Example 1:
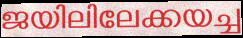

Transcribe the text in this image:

ജയിലിലേക്കയച്ച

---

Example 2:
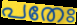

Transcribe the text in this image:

പതേഃ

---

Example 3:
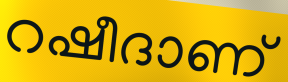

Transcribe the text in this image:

റഷീദാണ്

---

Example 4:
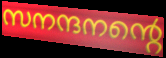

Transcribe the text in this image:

സനന്ദനന്റെ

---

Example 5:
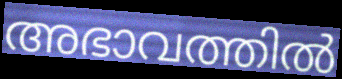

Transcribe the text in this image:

അഭാവത്തിൽ